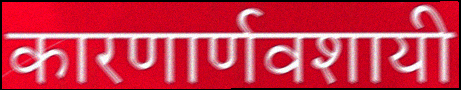
कारणार्णवशायी